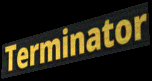
Terminator